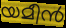
യമീൻ